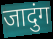
जादुंग